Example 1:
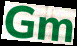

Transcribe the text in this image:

Gm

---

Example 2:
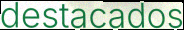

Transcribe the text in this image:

destacados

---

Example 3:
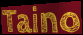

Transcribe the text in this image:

Taino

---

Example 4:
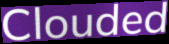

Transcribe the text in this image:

Clouded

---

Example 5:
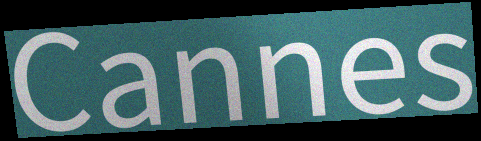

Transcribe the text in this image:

Cannes